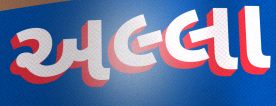
અલ્લા